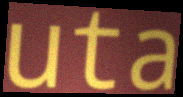
uta